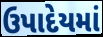
ઉપાદેયમાં